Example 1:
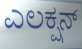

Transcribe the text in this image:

ಎಲಕ್ಷನ್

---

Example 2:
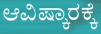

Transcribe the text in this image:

ಆವಿಷ್ಕಾರಕ್ಕೆ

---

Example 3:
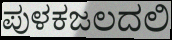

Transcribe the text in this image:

ಪುಳಕಜಲದಲಿ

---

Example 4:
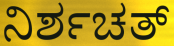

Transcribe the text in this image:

ನಿರ್ಶಚತ್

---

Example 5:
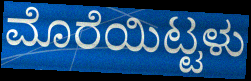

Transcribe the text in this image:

ಮೊರೆಯಿಟ್ಟಳು